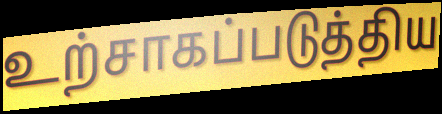
உற்சாகப்படுத்திய